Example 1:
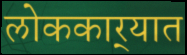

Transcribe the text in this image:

लोककार्यात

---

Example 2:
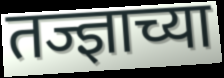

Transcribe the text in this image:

तज्ज्ञाच्या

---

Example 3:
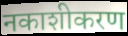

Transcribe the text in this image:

नकाशीकरण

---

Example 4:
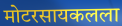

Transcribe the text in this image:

मोटरसायकलला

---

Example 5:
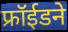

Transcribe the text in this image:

फ्रॉईडने